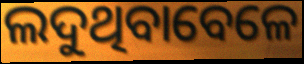
ଲଦୁଥିବାବେଳେ